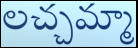
లచ్చమ్మా